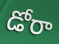
డోరా